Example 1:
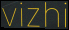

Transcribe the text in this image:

vizhi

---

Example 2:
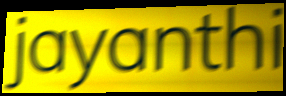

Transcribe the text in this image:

jayanthi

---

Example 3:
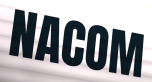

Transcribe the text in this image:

NACOM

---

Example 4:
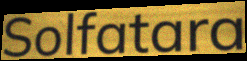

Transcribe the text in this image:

Solfatara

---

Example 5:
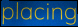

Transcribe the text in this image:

placing